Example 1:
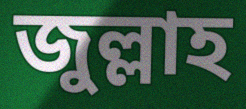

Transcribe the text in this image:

জুল্লাহ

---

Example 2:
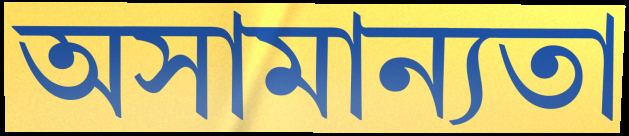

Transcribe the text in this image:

অসামান্যতা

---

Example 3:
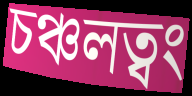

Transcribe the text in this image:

চঞ্চলত্বং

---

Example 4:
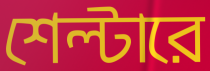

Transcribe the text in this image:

শেল্টারে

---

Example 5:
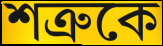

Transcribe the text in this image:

শত্রুকে